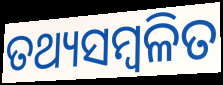
ତଥ୍ୟସମ୍ୱଳିତ